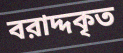
বরাদ্দকৃত